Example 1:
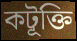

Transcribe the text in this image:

কটূক্তি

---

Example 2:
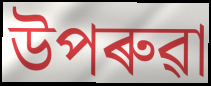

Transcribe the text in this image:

উপৰুৱা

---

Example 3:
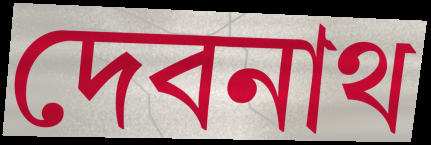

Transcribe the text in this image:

দেবনাথ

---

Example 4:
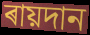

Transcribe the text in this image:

ৰায়দান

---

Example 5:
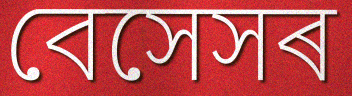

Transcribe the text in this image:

বেসেসৰ